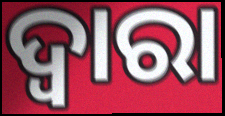
ଦ୍ବାରା